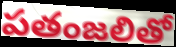
పతంజలితో